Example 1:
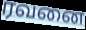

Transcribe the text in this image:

ரவனை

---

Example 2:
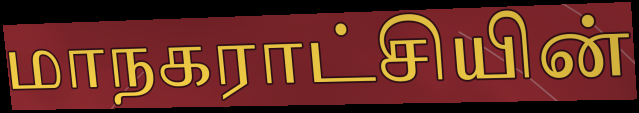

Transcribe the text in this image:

மாநகராட்சியின்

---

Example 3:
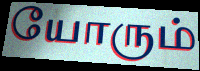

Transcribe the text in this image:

யோரும்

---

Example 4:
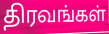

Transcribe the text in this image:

திரவங்கள்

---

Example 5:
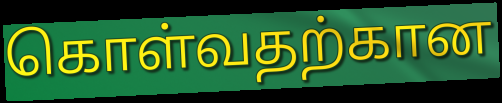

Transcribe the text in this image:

கொள்வதற்கான